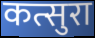
कत्सुरा